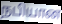
நபியான